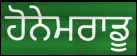
ਹੋਨੇਮਰਾਡੂ